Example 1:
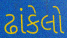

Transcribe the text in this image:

ઢાંકેલો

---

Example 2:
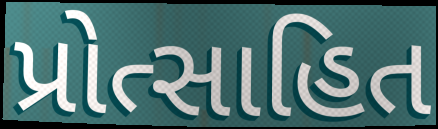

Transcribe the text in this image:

પ્રોત્સાહિત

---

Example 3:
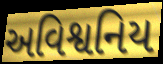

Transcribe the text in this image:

અવિશ્વનિય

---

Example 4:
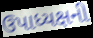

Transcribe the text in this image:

ઉપાધ્યક્ષની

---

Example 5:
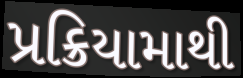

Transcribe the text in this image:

પ્રક્રિયામાથી